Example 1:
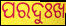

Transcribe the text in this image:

ପରଦୁଃଖ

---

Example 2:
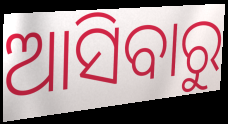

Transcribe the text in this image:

ଆସିବାରୁ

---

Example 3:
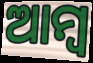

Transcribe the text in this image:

ଆମ୍ୱ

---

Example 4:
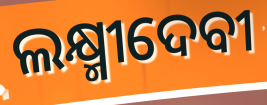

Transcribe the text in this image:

ଲକ୍ଷ୍ମୀଦେବୀ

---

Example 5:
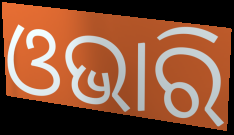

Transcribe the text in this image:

ଓଭାରି